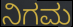
ನಿಗಮ